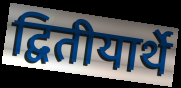
द्वितीयार्थे